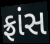
ફ્રાંસ